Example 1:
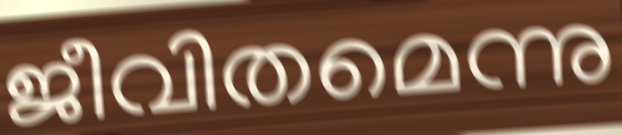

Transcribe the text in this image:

ജീവിതമെന്നു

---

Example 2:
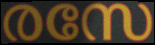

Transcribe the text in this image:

രസേ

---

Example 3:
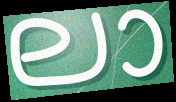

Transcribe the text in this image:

ലാ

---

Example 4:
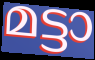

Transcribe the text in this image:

മട്ടാ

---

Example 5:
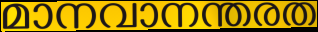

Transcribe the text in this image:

മാനവാനന്തരത